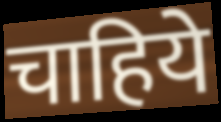
चाहिये